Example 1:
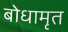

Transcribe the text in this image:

बोधामृत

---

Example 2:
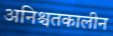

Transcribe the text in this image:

अनिश्चतकालीन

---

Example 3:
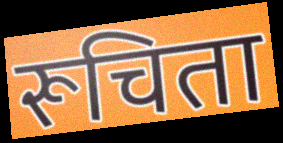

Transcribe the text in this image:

रूचिता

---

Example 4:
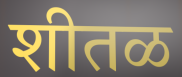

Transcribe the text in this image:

शीतळ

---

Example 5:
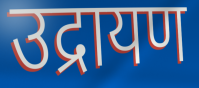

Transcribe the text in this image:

उद्रायण